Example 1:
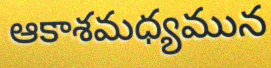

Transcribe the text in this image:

ఆకాశమధ్యమున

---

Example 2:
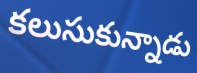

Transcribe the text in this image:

కలుసుకున్నాడు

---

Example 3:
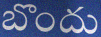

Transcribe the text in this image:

బొందు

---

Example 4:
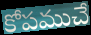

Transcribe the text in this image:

కోపముచే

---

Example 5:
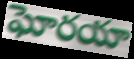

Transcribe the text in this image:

ఘోరయా